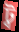
ট্ব